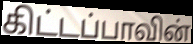
கிட்டப்பாவின்